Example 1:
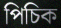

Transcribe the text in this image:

পিচিক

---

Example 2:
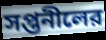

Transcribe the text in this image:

সপ্তনীলের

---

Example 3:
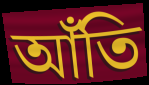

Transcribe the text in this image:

আঁতি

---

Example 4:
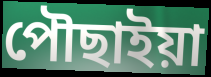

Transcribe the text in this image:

পৌছাইয়া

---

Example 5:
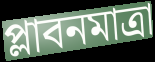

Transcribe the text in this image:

প্লাবনমাত্রা